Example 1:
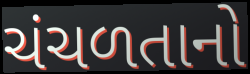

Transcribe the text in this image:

ચંચળતાનો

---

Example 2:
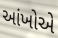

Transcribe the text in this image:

આંખોએ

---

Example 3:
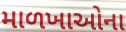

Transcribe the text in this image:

માળખાઓના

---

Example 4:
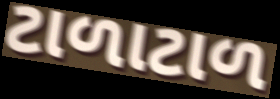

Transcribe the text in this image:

ટાળાટાળ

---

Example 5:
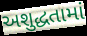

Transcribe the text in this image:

અશુદ્ધતામાં